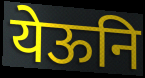
येऊनि